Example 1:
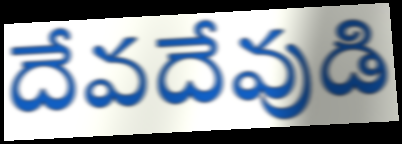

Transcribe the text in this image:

దేవదేవుడి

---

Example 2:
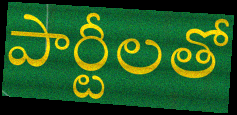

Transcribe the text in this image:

పార్టీలతో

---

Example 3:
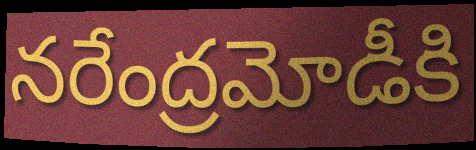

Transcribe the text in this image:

నరేంద్రమోడీకి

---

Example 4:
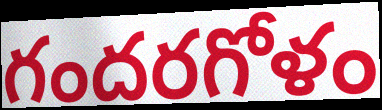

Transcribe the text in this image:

గందరగోళం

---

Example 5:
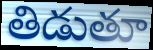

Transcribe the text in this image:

తిడుతూ